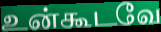
உன்கூடவே